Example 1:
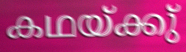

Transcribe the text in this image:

കഥയ്ക്കു്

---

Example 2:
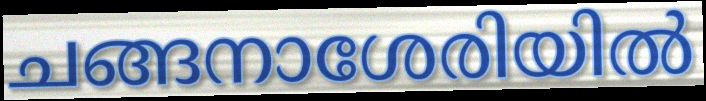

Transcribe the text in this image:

ചങ്ങനാശേരിയിൽ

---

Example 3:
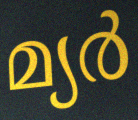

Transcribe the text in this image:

മ്യർ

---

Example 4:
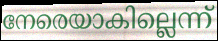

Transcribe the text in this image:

നേരെയാകില്ലെന്ന്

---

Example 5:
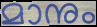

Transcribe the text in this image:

മാനും